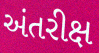
અંતરીક્ષ